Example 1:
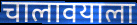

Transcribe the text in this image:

चालावयाला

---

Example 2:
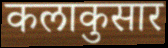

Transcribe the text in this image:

कलाकुसार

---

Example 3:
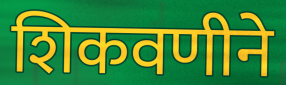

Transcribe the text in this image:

शिकवणीने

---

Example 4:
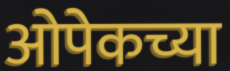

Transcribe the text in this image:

ओपेकच्या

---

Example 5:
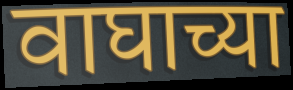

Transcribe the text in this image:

वाघाच्या